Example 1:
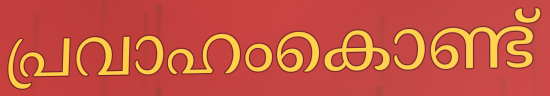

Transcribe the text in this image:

പ്രവാഹംകൊണ്ട്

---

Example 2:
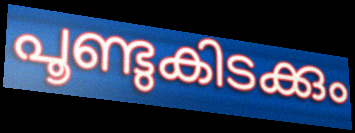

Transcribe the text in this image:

പൂണ്ടുകിടക്കും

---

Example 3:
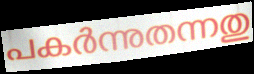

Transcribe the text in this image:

പകർന്നുതന്നതു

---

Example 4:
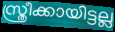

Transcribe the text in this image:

സ്ത്രീക്കായിട്ടല്ല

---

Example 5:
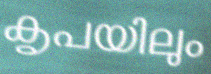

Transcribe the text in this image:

കൃപയിലും